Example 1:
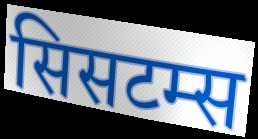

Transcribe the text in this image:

सिसटम्स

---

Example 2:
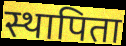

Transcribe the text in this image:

स्थापिता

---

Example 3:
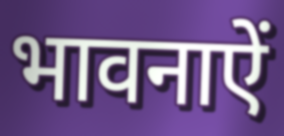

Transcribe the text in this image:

भावनाऐं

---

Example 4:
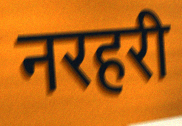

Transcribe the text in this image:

नरहरी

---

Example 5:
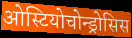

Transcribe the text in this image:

ओस्टियोचोन्ड्रोसिस